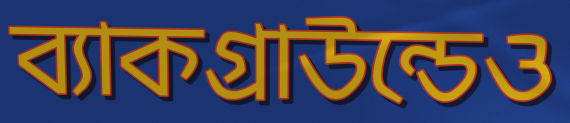
ব্যাকগ্রাউন্ডেও